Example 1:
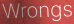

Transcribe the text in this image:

Wrongs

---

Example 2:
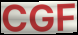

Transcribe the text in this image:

CGF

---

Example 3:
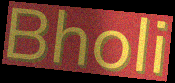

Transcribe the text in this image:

Bholi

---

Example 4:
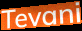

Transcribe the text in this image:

Tevani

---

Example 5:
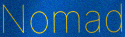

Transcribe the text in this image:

Nomad